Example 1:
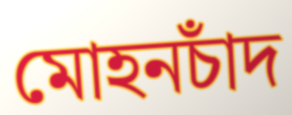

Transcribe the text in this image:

মোহনচাঁদ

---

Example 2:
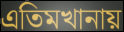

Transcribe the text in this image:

এতিমখানায়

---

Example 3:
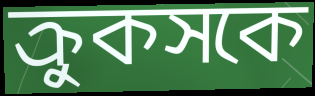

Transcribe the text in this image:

ক্রুকসকে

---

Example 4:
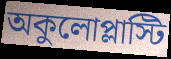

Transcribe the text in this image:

অকুলোপ্লাস্টি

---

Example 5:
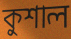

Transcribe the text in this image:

কুশাল